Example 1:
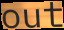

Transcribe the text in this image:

out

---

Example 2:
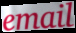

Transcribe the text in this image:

email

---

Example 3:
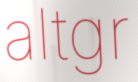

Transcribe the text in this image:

altgr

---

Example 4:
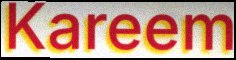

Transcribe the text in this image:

Kareem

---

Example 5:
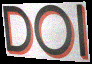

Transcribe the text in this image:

DOI